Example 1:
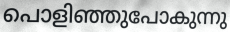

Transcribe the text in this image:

പൊളിഞ്ഞുപോകുന്നു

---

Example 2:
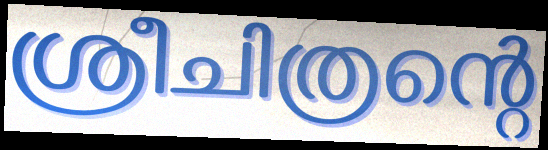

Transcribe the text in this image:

ശ്രീചിത്രന്റെ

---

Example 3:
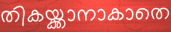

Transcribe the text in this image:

തികയ്ക്കാനാകാതെ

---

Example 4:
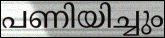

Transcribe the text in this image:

പണിയിച്ചും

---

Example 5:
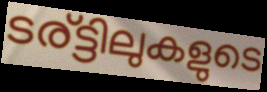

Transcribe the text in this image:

ടര്ട്ടിലുകളുടെ